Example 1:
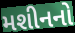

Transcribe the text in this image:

મશીનનો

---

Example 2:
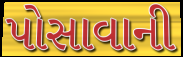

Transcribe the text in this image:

પોસાવાની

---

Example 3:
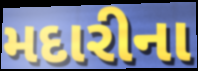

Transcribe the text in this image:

મદારીના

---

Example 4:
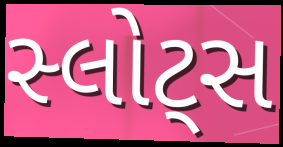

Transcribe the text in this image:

સ્લોટ્સ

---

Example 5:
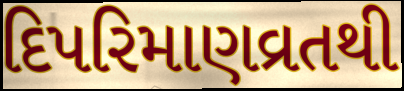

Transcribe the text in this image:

દિપરિમાણવ્રતથી